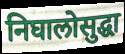
निघालोसुद्धा